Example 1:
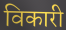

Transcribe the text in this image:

विकारी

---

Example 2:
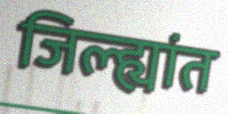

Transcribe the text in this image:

जिल्ह्यांत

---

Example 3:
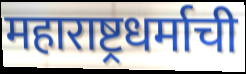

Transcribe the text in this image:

महाराष्ट्रधर्माची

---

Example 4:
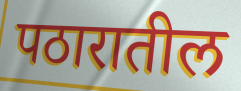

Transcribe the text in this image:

पठारातील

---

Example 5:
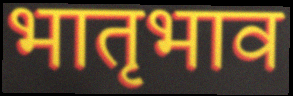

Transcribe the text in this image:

भातृभाव